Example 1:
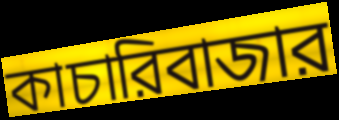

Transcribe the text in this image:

কাচারিবাজার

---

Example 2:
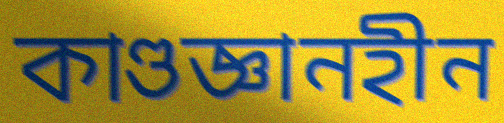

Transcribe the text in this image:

কাণ্ডজ্ঞানহীন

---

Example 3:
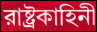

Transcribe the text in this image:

রাষ্ট্রকাহিনী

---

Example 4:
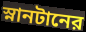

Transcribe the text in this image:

স্নানটানের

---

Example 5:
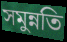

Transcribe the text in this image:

সমুন্নতি